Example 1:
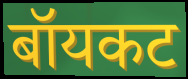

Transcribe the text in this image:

बॉयकट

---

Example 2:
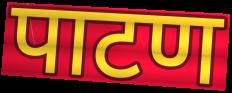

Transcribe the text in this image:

पाटण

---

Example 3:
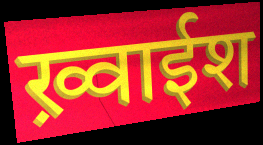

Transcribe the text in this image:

ख़्वाईश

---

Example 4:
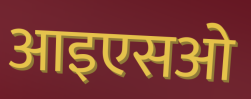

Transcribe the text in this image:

आइएसओ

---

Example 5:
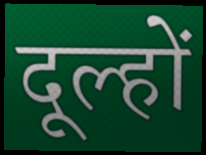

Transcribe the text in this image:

दूल्हों